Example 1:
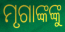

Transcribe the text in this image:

ମୃଗାଙ୍କଙ୍କୁ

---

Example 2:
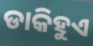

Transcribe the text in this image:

ଡାକିହୁଏ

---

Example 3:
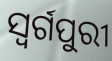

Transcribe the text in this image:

ସ୍ଵର୍ଗପୁରୀ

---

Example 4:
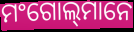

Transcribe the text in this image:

ମଂଗୋଲ୍‍ମାନେ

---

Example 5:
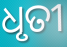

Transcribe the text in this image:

ଧୃତୀ